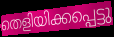
തെളിയിക്കപ്പെട്ടു